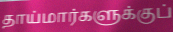
தாய்மார்களுக்குப்